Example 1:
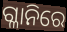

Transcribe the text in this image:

ଗ୍ଳାନିରେ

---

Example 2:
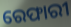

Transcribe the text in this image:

ରେଫାରୀ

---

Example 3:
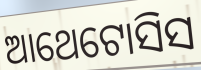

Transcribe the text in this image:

ଆଥେଟୋସିସ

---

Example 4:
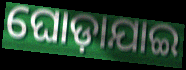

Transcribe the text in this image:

ଘୋଡ଼ାଯାଇ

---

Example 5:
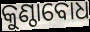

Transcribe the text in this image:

କୁଣ୍ଠାବୋଧ